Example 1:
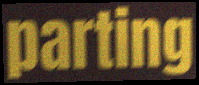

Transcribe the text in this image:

parting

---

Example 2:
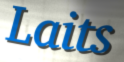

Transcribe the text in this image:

Laits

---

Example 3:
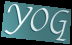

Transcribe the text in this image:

YOG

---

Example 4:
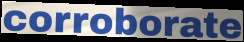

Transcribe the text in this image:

corroborate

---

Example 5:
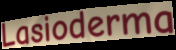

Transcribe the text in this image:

Lasioderma